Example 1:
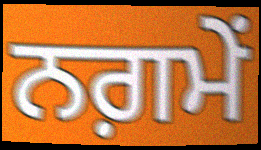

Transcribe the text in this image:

ਨਗ਼ਮੇਂ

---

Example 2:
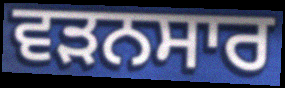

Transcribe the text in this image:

ਵੜਨਸਾਰ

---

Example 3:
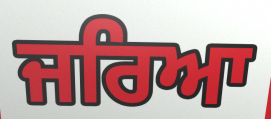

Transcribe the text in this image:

ਜਰਿਆ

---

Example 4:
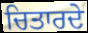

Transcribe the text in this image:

ਚਿਤਾਰਦੇ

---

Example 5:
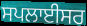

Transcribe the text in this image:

ਸਪਲਾਈਸਰ